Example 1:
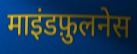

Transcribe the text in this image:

माइंडफ़ुलनेस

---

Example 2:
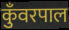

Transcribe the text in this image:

कुँवरपाल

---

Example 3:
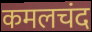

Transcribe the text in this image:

कमलचंद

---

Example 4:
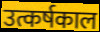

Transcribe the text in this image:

उत्कर्षकाल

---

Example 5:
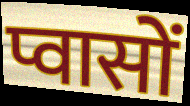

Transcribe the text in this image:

प्वासों